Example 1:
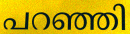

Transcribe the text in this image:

പറഞ്ഞി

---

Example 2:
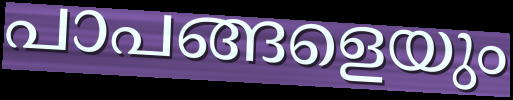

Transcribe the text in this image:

പാപങ്ങളെയും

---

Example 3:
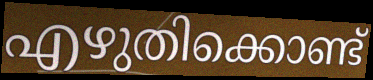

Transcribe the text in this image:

എഴുതിക്കൊണ്ട്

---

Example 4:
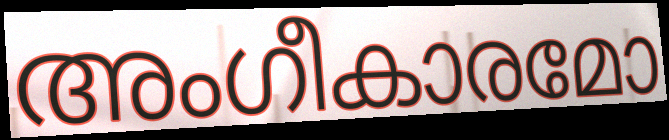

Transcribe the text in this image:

അംഗീകാരമോ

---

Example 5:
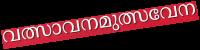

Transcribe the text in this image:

വത്സാവനമുത്സവേന